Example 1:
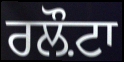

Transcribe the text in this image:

ਰਲ਼ੌਟਾ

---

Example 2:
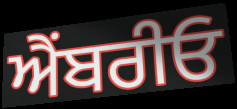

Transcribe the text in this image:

ਐੰਬਰੀਓ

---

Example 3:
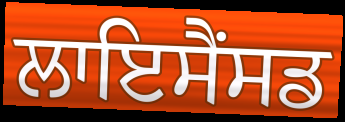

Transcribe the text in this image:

ਲਾਇਸੈਂਸਡ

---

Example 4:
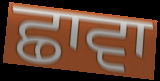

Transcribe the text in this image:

ਛਾਵਾ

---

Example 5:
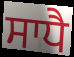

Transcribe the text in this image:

ਸਾਧੈ